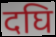
दघि